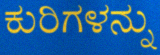
ಕುರಿಗಳನ್ನು